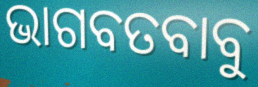
ଭାଗବତବାବୁ